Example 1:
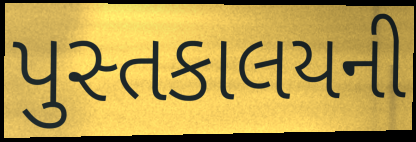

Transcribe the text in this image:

પુસ્તકાલયની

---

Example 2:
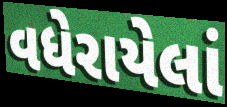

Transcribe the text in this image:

વધેરાયેલાં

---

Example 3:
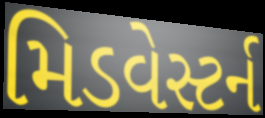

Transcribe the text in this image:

મિડવેસ્ટર્ન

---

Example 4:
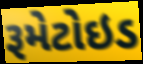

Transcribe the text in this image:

રૂમેટોઇડ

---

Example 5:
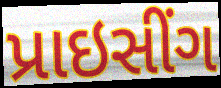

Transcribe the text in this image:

પ્રાઇસીંગ